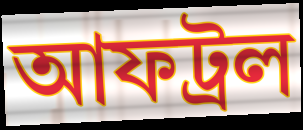
আফট্রল